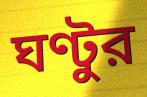
ঘণ্টুর